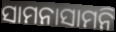
ସାମନାସାମନି